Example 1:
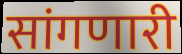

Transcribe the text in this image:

सांगणारी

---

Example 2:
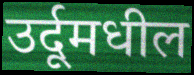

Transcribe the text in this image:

उर्दूमधील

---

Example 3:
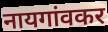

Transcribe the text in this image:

नायगांवकर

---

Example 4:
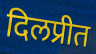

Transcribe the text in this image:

दिलप्रीत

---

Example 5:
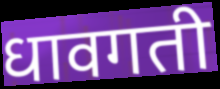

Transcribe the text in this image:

धावगती